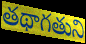
తథాగతుని